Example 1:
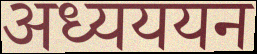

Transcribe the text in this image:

अध्यययन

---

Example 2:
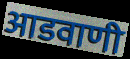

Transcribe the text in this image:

आडवाणी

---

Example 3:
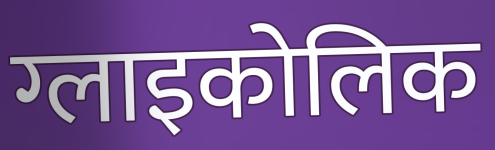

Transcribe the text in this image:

ग्लाइकोलिक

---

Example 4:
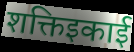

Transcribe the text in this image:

शक्तिइकाई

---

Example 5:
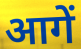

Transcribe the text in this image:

आगें